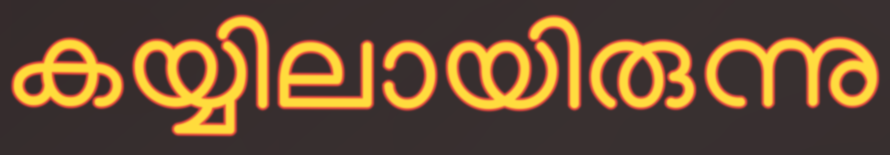
കയ്യിലായിരുന്നു